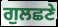
ਗੁਲਛਣੇ